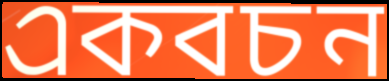
একবচন